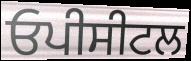
ਓਪੀਸੀਟਲ